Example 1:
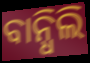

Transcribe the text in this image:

ବାନ୍ଧିଲି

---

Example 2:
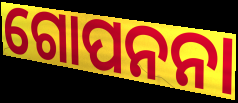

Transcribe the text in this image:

ଗୋପନନା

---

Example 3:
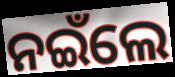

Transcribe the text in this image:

ନଇଁଲେ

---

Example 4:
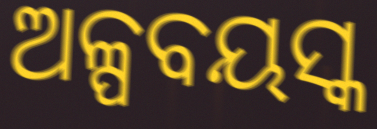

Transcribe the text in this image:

ଅଳ୍ପବୟସ୍କ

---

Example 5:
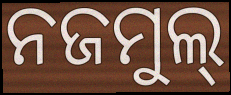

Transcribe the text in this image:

ନଜମୁଲ୍